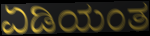
ಏಡಿಯಂತ